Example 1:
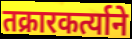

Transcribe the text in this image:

तक्रारकर्त्याने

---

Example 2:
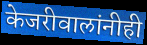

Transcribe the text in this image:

केजरीवालांनीही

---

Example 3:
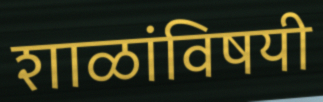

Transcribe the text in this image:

शाळांविषयी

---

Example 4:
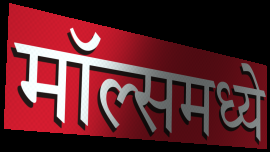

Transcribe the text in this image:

मॉल्समध्ये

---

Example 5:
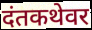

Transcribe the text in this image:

दंतकथेवर